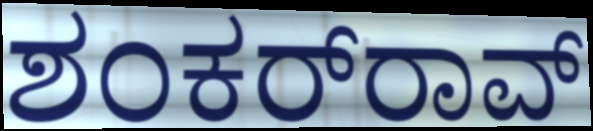
ಶಂಕರ್‌ರಾವ್